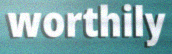
worthily